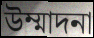
উম্মাদনা